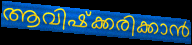
ആവിഷ്‌ക്കരിക്കാൻ